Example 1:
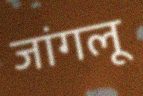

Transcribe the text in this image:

जांगलू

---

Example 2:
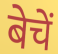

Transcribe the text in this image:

बेचें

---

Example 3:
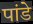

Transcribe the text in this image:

पांडे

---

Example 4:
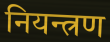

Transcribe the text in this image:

नियन्त्रण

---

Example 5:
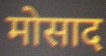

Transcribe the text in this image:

मोसाद